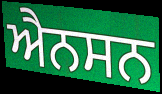
ਐਨਸਨ